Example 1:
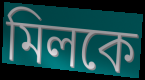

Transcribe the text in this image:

মিলকে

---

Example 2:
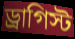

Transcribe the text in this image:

ড্রাগিস্ট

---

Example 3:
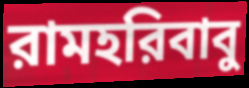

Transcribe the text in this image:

রামহরিবাবু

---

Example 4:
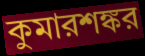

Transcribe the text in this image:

কুমারশঙ্কর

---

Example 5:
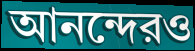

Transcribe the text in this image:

আনন্দেরও